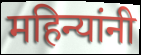
महिन्यांनी